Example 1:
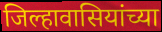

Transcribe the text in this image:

जिल्हावासियांच्या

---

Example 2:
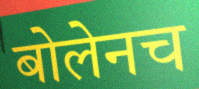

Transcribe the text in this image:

बोलेनच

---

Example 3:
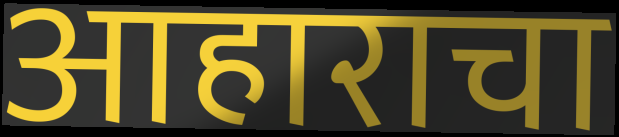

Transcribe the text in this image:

आहाराचा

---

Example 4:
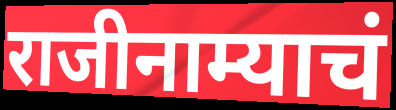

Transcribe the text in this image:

राजीनाम्याचं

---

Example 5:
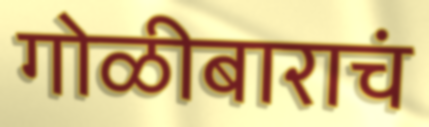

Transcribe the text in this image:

गोळीबाराचं